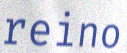
reino